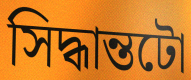
সিদ্ধান্তটো